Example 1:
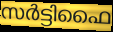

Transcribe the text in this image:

സർട്ടിഫൈ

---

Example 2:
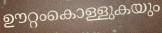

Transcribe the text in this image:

ഊറ്റംകൊള്ളുകയും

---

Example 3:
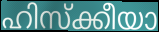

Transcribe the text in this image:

ഹിസ്ക്കീയാ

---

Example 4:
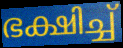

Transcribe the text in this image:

ഭക്ഷിച്ച്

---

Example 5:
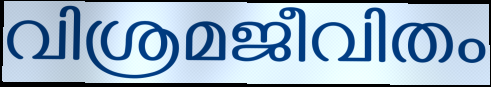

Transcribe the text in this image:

വിശ്രമജീവിതം